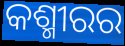
କଶ୍ମୀରର